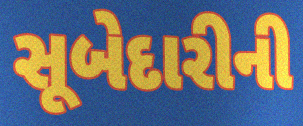
સૂબેદારીની